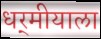
धर्मीयाला